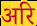
अरि